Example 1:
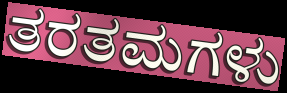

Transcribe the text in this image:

ತರತಮಗಳು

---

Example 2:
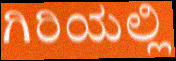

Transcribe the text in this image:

ಗಿರಿಯಲ್ಲಿ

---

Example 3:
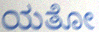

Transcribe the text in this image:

ಯತೋ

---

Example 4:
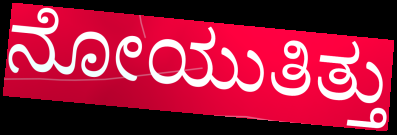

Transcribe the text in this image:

ನೋಯುತಿತ್ತು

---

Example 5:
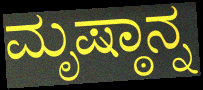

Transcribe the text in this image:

ಮೃಷ್ಠಾನ್ನ